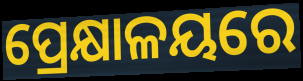
ପ୍ରେକ୍ଷାଳୟରେ